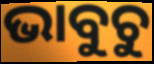
ଭାବୁଚୁ